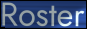
Roster